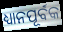
ଧ୍ୟାନପୂର୍ବକ